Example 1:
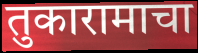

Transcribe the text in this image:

तुकारामाचा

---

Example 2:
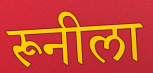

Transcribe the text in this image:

रूनीला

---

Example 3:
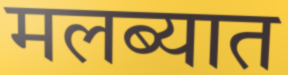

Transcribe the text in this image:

मलब्यात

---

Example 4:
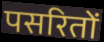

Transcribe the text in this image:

पसरितों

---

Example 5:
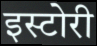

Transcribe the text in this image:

इस्टोरी